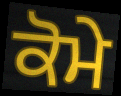
ਕੋਮੇ